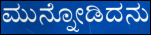
ಮುನ್ನೋಡಿದನು